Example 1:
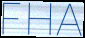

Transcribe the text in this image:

FHA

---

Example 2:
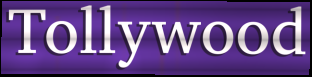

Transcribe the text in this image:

Tollywood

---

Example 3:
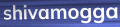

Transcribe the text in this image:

shivamogga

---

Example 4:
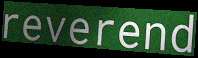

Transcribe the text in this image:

reverend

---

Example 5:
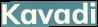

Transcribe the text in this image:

Kavadi